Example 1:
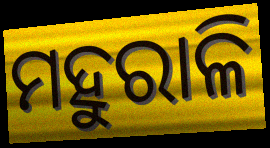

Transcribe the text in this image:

ମହୁରାଳି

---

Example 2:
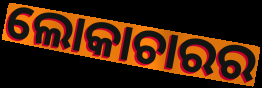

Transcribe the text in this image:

ଲୋକାଚାରର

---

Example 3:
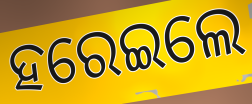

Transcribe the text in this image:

ହରେଇଲେ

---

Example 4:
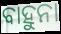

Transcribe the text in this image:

ବାହୁନା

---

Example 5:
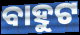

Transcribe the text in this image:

ବାହୁଟ